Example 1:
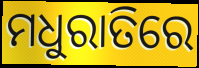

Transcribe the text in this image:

ମଧୁରାତିରେ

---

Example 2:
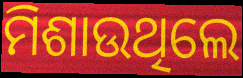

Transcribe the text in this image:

ମିଶାଉଥିଲେ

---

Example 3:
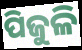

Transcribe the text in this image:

ପିଜୁଳି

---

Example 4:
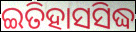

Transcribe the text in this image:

ଇତିହାସସିଦ୍ଧ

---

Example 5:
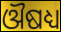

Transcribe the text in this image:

ଔଷଧ୍ୟ